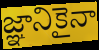
జ్ఞానికైనా